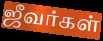
ஜீவர்கள்